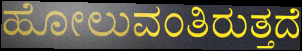
ಹೋಲುವಂತಿರುತ್ತದೆ